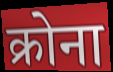
क्रोना